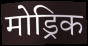
मोड्रिक